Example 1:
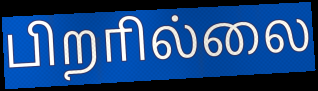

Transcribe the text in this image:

பிறரில்லை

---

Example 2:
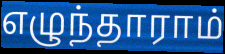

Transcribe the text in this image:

எழுந்தாராம்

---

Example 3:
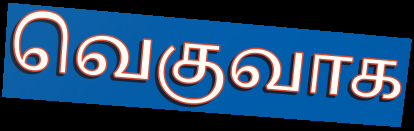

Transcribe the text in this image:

வெகுவாக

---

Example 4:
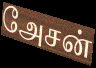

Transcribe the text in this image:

அேசன்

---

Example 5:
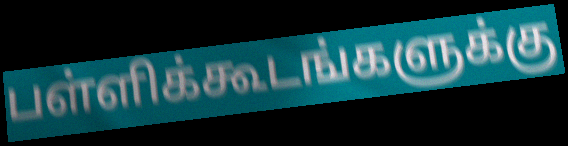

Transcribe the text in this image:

பள்ளிக்கூடங்களுக்கு